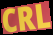
CRL